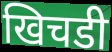
खिचडी